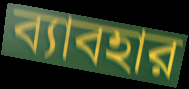
ব্যাবহার